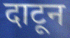
दाटून